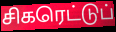
சிகரெட்டுப்